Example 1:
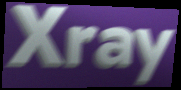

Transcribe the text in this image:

Xray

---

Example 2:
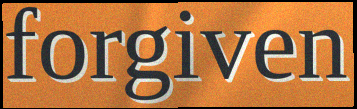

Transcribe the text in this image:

forgiven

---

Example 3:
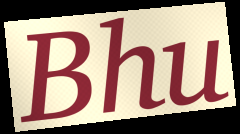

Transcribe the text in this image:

Bhu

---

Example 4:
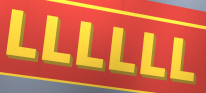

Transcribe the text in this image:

LLLLLL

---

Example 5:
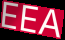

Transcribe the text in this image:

EEA